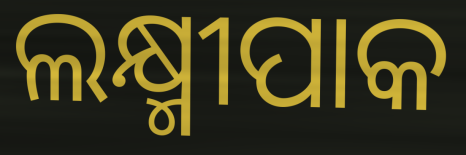
ଲକ୍ଷ୍ମୀପାକ